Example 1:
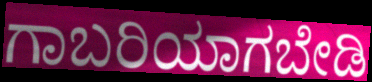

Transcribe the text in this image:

ಗಾಬರಿಯಾಗಬೇಡಿ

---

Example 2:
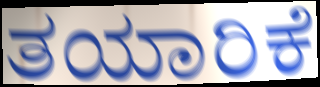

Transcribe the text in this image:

ತಯಾರಿಕೆ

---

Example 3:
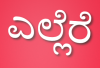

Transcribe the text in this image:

ಎಲ್ಲೆರೆ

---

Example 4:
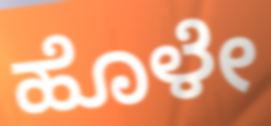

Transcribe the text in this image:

ಹೊಳೇ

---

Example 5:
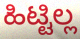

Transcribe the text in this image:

ಹಿಟ್ಟಿಲ್ಲ